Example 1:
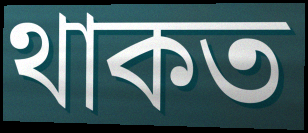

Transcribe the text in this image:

থাকত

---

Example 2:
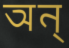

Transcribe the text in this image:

অন্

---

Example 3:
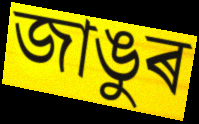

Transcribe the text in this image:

জাঙুৰ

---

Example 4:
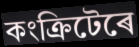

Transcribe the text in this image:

কংক্ৰিটেৰে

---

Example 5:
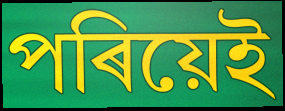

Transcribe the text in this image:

পৰিয়েই